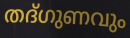
തദ്ഗുണവും